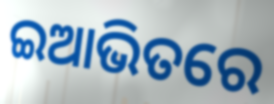
ଇଆଭିତରେ